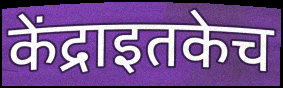
केंद्राइतकेच